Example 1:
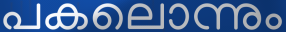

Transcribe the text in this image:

പകലൊന്നും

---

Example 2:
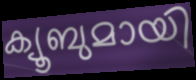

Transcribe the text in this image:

ക്യൂബുമായി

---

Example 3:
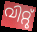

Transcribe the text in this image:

വിറ്റു്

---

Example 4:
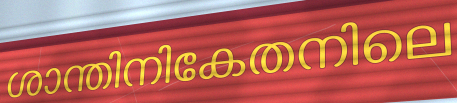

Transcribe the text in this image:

ശാന്തിനികേതനിലെ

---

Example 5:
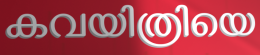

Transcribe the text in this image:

കവയിത്രിയെ